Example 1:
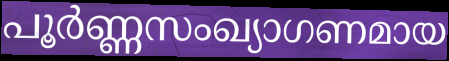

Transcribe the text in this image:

പൂർണ്ണസംഖ്യാഗണമായ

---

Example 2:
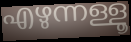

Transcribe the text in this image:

എഴുന്നള്ളൂ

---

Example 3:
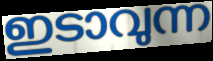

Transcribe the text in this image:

ഇടാവുന്ന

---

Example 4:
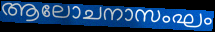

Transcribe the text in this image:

ആലോചനാസംഘം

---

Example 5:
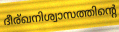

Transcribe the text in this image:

ദീര്ഖനിശ്വാസത്തിന്റെ